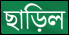
ছাড়িল